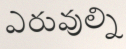
ఎరువుల్ని